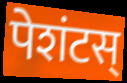
पेशंटस्